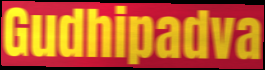
Gudhipadva